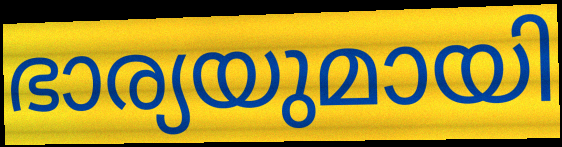
ഭാര്യയുമായി